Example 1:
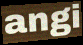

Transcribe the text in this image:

angi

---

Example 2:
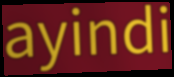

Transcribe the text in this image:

ayindi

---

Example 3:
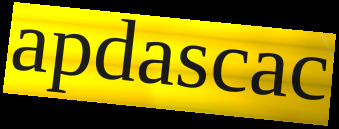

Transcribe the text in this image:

apdascac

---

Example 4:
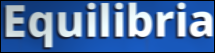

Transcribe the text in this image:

Equilibria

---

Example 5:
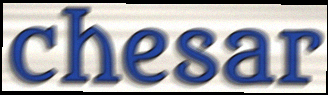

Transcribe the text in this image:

chesar